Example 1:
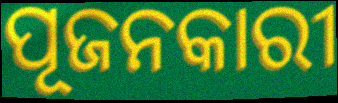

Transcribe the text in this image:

ପୂଜନକାରୀ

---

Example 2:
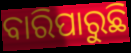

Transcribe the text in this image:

ବାରିପାରୁଛି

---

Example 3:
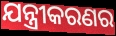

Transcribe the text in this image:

ଯନ୍ତ୍ରୀକରଣର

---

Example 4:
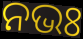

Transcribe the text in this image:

ନଭଃ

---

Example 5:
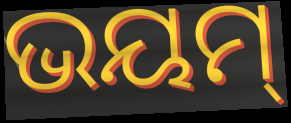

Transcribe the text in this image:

ଭୟମ୍